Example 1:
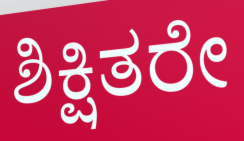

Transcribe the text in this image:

ಶಿಕ್ಷಿತರೇ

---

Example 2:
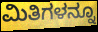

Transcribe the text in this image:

ಮಿತಿಗಳನ್ನೂ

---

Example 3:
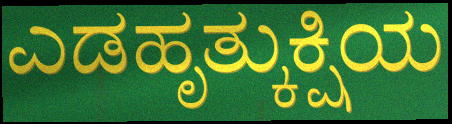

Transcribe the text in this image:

ಎಡಹೃತ್ಕುಕ್ಷಿಯ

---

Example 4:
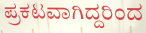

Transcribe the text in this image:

ಪ್ರಕಟವಾಗಿದ್ದರಿಂದ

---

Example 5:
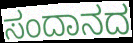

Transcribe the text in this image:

ಸಂದಾನದ